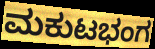
ಮಕುಟಭಂಗ